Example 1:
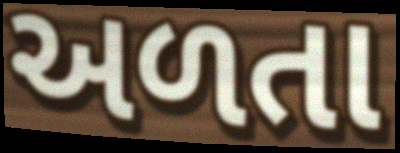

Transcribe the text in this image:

અળતા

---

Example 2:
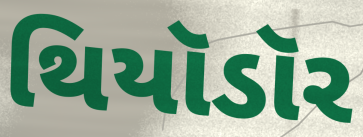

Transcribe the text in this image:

થિયૉડૉર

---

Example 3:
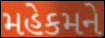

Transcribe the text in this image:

મહેકમને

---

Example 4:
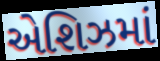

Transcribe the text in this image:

એશિઝમાં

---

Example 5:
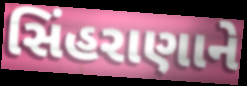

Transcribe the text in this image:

સિંહરાણાને